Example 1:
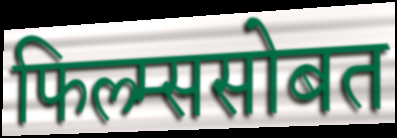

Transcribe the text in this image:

फिल्म्ससोबत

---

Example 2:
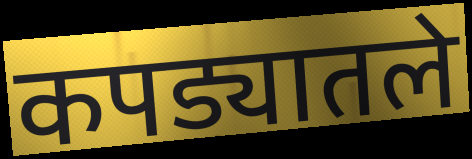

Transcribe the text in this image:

कपड्यातले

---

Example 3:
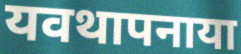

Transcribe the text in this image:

यवथापनाया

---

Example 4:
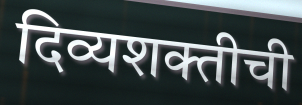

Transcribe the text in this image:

दिव्यशक्तीची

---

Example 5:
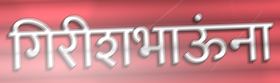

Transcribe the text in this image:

गिरीशभाऊंना